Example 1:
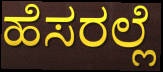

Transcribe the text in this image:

ಹೆಸರಲ್ಲೆ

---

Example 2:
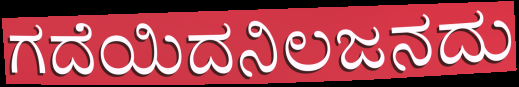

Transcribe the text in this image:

ಗದೆಯಿದನಿಲಜನದು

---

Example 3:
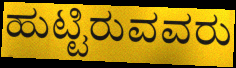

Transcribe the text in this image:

ಹುಟ್ಟಿರುವವರು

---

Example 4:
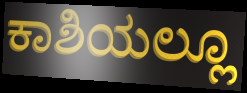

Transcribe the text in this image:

ಕಾಶಿಯಲ್ಲೂ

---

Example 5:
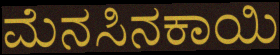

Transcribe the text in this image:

ಮೆನಸಿನಕಾಯಿ